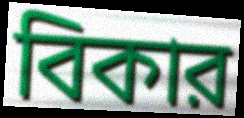
বিকার